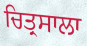
ਚਿਤ੍ਰਸਾਲਾ